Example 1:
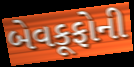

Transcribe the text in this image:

બેવકૂફોની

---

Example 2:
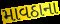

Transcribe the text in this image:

માવઠાના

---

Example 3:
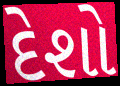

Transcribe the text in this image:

દેશો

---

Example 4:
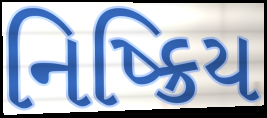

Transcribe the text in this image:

નિષ્ક્રિય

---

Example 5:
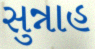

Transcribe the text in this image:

સુન્નાહ